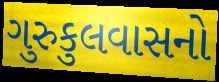
ગુરુકુલવાસનો